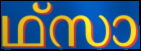
ഥ്സാ